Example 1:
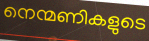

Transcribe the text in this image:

നെന്മണികളുടെ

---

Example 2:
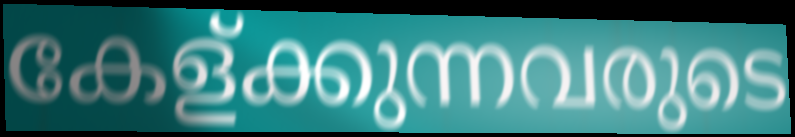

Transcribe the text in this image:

കേള്ക്കുന്നവരുടെ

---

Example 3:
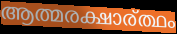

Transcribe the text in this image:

ആത്മരക്ഷാര്ത്ഥം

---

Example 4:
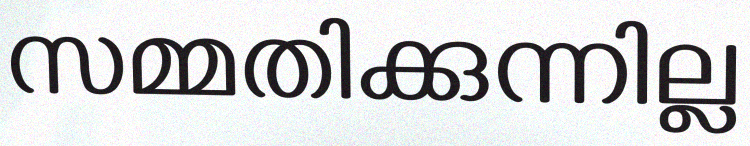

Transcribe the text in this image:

സമ്മതിക്കുന്നില്ല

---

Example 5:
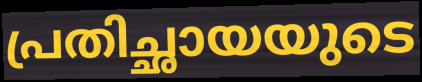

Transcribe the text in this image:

പ്രതിച്ഛായയുടെ